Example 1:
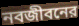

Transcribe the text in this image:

নবজীবনের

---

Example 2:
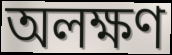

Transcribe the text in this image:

অলক্ষণ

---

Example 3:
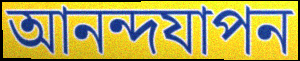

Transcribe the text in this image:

আনন্দযাপন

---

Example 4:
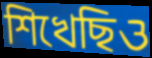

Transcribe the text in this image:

শিখেছিও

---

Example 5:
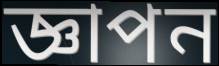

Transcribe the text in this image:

জ্ঞাপন